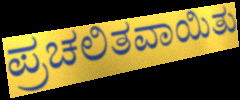
ಪ್ರಚಲಿತವಾಯಿತು